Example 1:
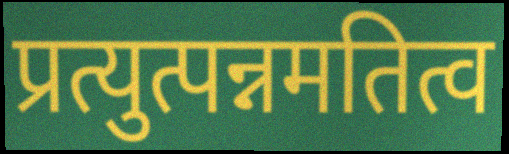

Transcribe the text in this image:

प्रत्युत्पन्नमतित्व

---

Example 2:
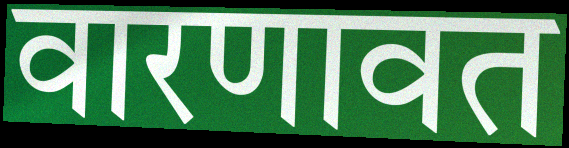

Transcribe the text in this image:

वारणावत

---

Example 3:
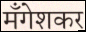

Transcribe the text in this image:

मँगेशकर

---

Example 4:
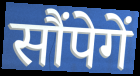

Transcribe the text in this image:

सौंपेगें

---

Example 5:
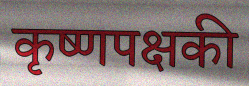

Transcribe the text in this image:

कृष्णपक्षकी